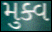
મુક્વ